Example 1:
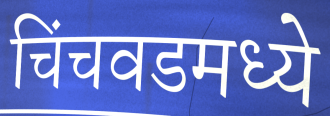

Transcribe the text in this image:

चिंचवडमध्ये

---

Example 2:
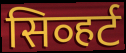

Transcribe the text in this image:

सिव्हर्ट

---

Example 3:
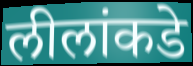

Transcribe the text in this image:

लीलांकडे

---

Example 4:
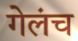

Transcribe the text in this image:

गेलंच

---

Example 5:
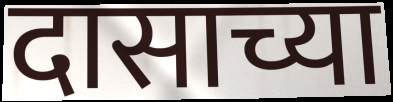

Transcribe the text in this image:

दासाच्या